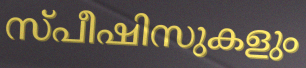
സ്പീഷിസുകളും